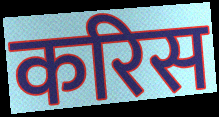
करिस